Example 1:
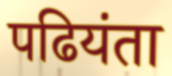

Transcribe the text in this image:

पढियंता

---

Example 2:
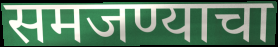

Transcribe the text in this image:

समजण्याचा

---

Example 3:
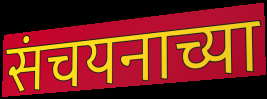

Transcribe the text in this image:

संचयनाच्या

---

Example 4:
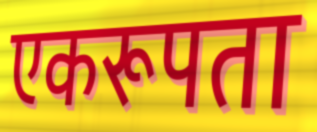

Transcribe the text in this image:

एकरूपता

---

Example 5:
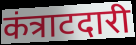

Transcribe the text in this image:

कंत्राटदारी